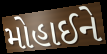
મોહાઈને